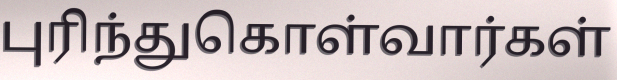
புரிந்துகொள்வார்கள்